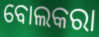
ବୋଲକରା